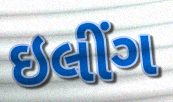
ઇલીંગ